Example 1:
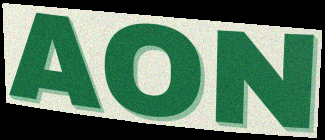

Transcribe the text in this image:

AON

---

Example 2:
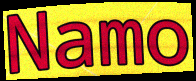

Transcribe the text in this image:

Namo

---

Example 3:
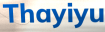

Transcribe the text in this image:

Thayiyu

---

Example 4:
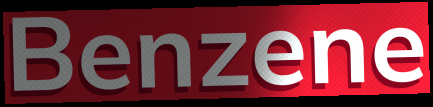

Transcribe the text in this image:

Benzene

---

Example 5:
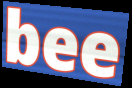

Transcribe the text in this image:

bee